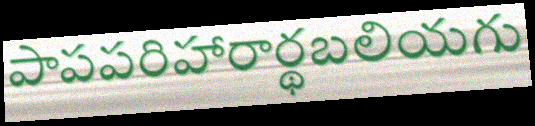
పాపపరిహారార్థబలియగు